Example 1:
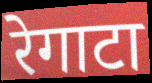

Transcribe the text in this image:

रेगाटा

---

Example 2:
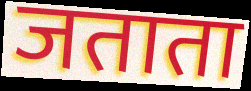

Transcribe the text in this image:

जताता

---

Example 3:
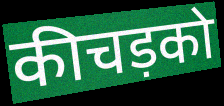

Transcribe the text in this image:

कीचड़को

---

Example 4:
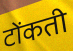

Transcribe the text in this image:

टोंकती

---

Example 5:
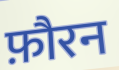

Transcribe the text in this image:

फ़ौरन